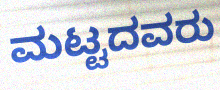
ಮಟ್ಟದವರು